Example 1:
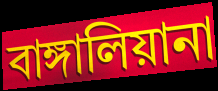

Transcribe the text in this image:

বাঙ্গালিয়ানা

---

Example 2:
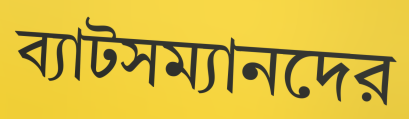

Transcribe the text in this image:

ব্যাটসম্যানদের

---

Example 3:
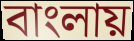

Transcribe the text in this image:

বাংলায়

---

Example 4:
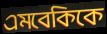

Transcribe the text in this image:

এমবেকিকে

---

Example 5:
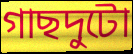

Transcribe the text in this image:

গাছদুটো